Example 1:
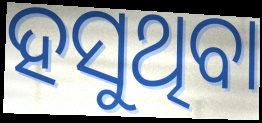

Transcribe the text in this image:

ହସୁଥିବା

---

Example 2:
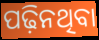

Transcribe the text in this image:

ପଢ଼ିନଥିବା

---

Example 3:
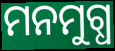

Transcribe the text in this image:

ମନମୁଗ୍ଧ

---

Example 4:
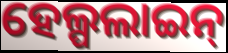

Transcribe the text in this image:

ହେଲ୍ପଲାଇନ୍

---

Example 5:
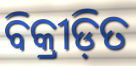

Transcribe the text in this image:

ବିକ୍ରୀଡ଼ିତ